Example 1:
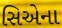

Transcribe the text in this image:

સિએના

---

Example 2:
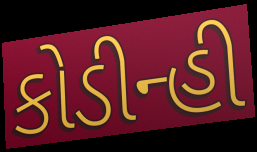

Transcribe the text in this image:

કોડીન્હી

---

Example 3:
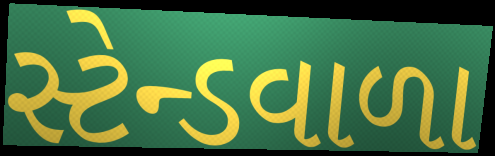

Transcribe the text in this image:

સ્ટેન્ડવાળા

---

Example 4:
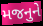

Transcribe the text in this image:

મજનુને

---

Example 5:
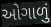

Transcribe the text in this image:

ઓગાળું